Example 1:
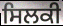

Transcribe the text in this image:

ਸਿਲਕੀ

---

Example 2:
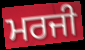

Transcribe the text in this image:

ਮਰਜੀ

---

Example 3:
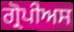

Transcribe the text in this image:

ਗ੍ਰੋਪੀਅਸ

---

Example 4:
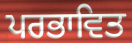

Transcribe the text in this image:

ਪਰਭਾਵਿਤ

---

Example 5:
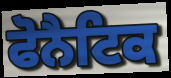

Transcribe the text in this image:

ਫੋਨੈਟਿਕ